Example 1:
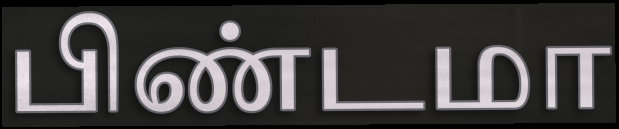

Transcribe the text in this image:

பிண்டமா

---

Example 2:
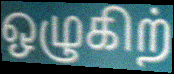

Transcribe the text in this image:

ஒழுகிற்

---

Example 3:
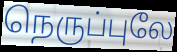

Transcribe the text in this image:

நெருப்புலே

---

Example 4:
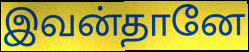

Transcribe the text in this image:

இவன்தானே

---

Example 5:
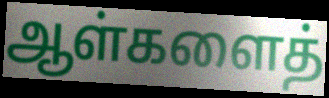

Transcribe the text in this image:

ஆள்களைத்